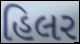
હિલર